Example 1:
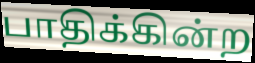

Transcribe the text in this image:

பாதிக்கின்ற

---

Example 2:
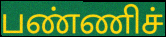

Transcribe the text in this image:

பண்ணிச்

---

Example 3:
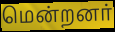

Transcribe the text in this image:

மென்றனர்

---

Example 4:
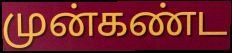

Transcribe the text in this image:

முன்கண்ட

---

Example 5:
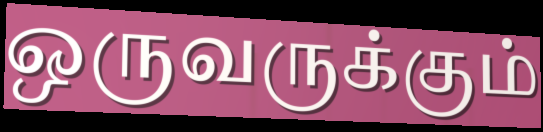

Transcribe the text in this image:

ஒருவருக்கும்